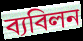
ব্যবিলন